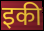
इकी